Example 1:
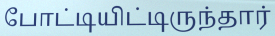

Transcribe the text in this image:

போட்டியிட்டிருந்தார்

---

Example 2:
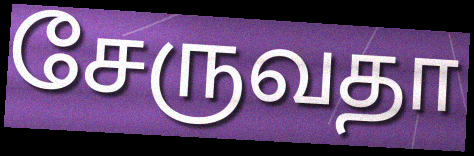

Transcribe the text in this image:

சேருவதா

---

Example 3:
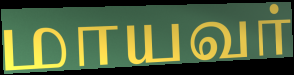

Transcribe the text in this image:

மாயவர்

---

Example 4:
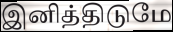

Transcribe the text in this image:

இனித்திடுமே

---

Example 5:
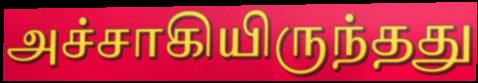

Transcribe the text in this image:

அச்சாகியிருந்தது